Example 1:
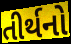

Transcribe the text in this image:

તીર્થનો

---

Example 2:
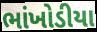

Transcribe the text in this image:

ભાંખોડીયા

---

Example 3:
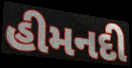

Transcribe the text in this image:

હીમનદી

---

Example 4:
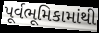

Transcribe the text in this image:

પૂર્વભૂમિકામાંથી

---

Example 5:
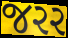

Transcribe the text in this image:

જરર